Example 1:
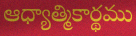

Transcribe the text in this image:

ఆధ్యాత్మికార్థము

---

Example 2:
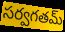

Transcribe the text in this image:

సర్వగతమ్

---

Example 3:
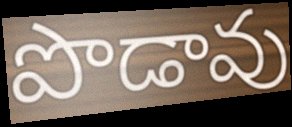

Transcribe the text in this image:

పొడావు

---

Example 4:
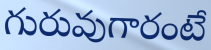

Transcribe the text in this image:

గురువుగారంటే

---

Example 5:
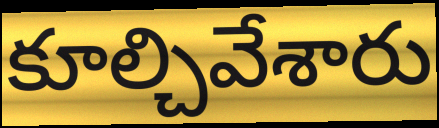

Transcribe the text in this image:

కూల్చివేశారు